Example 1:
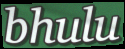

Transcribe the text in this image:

bhulu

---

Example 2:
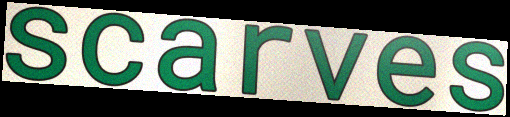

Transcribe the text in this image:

scarves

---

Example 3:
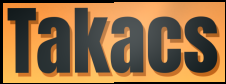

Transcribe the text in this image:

Takacs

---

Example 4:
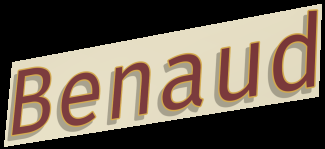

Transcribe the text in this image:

Benaud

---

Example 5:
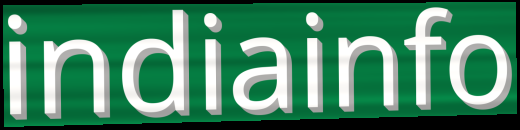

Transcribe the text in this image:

indiainfo